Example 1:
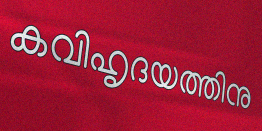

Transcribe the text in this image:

കവിഹൃദയത്തിനു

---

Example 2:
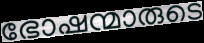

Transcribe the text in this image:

ഭോഷന്മാരുടെ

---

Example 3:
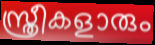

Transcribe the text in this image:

സ്ത്രീകളാരും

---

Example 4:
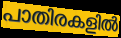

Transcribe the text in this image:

പാതിരകളിൽ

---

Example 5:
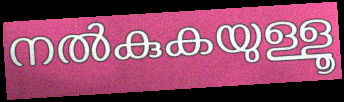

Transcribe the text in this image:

നൽകുകയുള്ളൂ